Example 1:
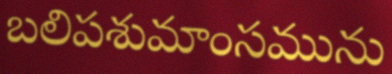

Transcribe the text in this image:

బలిపశుమాంసమును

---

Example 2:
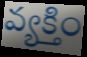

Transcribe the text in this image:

వ్యక్తిం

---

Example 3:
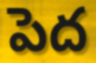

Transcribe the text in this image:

పెద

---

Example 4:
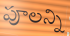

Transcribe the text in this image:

పూలన్ని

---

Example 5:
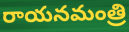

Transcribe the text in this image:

రాయనమంత్రి